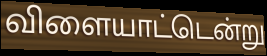
விளையாட்டென்று